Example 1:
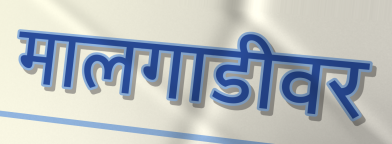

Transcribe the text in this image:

मालगाडीवर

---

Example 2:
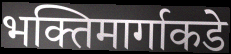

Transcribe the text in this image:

भक्तिमार्गाकडे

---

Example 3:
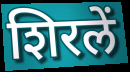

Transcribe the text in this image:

शिरलें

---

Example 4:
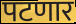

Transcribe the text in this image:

पटणार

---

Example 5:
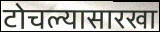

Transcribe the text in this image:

टोचल्यासारखा